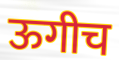
ऊगीच